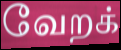
வேறக்